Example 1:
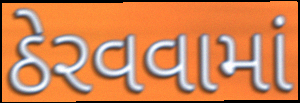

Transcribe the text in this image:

ઠેરવવામાં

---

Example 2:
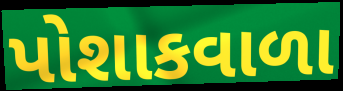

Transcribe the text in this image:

પોશાકવાળા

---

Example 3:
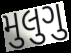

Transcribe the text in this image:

મુલુગુ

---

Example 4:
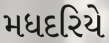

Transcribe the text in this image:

મધદરિયે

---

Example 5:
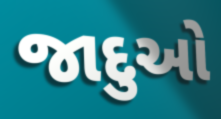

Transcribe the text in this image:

જાદુઓ